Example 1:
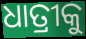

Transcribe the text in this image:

ଧାତ୍ରୀକୁ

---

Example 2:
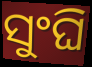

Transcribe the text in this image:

ସୁଂଘି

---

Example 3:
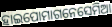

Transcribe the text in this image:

ହାଇପୋମାଗନେସେମିଆ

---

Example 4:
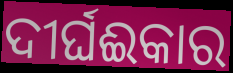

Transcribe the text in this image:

ଦୀର୍ଘଈକାର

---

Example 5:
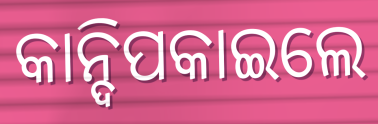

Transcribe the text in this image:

କାନ୍ଦିପକାଇଲେ